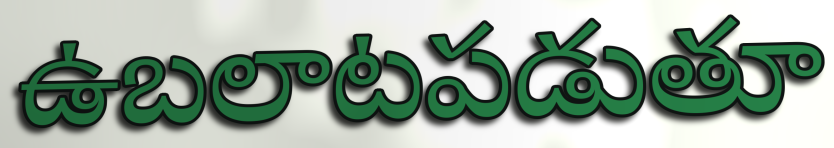
ఉబలాటపడుతూ